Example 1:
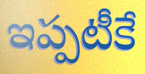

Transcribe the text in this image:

ఇప్పటీకే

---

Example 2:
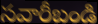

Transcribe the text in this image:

సవారీబండి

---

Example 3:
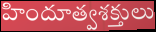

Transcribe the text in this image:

హిందూత్వశక్తులు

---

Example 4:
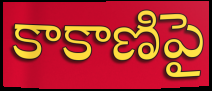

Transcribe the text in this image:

కాకాణిపై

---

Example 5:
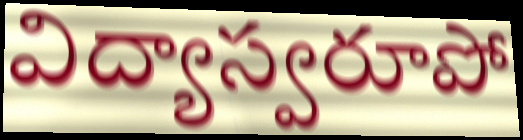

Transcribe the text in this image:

విద్యాస్వరూపో